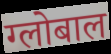
ग्लोबाल